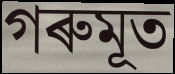
গৰুমূত